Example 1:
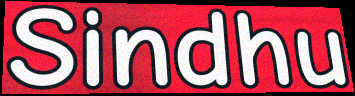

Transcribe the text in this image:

Sindhu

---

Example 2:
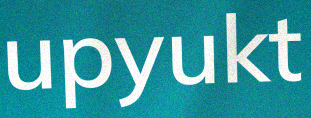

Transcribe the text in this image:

upyukt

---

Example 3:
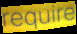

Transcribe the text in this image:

require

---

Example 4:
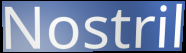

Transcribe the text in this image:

Nostril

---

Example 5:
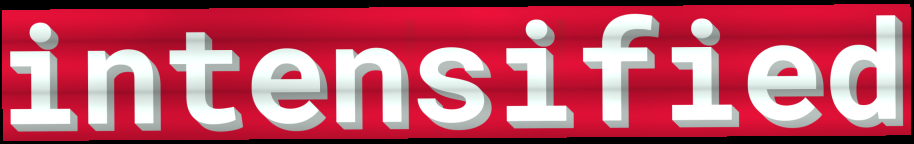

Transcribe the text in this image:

intensified